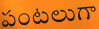
పంటలుగా